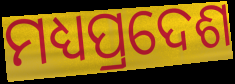
ମଧ୍ୟପ୍ରଦେଶ